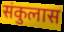
संकुलास